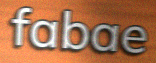
fabae